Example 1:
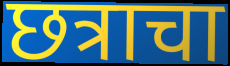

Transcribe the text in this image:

छत्राचा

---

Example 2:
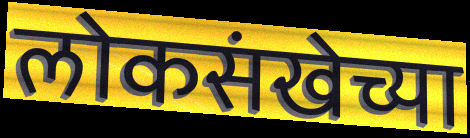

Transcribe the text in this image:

लोकसंखेच्या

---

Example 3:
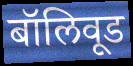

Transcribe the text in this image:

बॉलिवूड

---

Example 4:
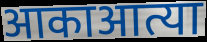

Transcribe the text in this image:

आकाआत्या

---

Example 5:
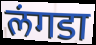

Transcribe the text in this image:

लंगडा